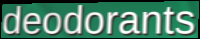
deodorants